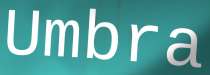
Umbra